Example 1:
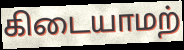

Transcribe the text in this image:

கிடையாமற்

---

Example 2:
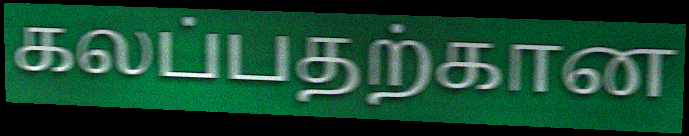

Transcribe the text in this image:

கலப்பதற்கான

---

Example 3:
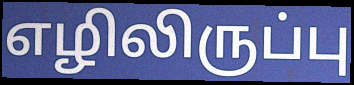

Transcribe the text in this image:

எழிலிருப்பு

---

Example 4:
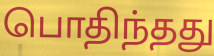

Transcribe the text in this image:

பொதிந்தது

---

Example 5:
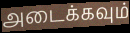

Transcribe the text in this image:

அடைக்கவும்